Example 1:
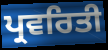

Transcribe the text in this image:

ਪ੍ਰਵਰਿਤੀ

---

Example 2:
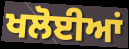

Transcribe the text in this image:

ਖਲੋਈਆਂ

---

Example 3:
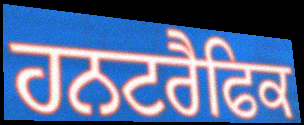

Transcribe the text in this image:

ਹਨਟਰੈਫਿਕ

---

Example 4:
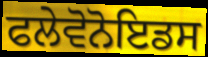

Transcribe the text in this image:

ਫਲੇਵੋਨੋਇਡਸ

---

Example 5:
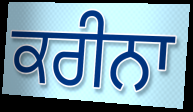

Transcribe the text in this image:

ਕਰੀਨਾ